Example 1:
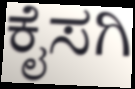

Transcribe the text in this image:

ಕೈಸಗಿ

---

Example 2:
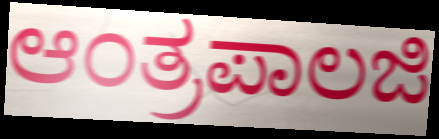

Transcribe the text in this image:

ಆಂತ್ರಪಾಲಜಿ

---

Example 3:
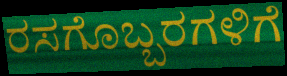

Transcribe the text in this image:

ರಸಗೊಬ್ಬರಗಳಿಗೆ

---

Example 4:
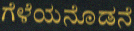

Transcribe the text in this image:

ಗೆಳೆಯನೊಡನೆ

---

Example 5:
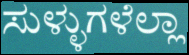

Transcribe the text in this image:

ಸುಳ್ಳುಗಳೆಲ್ಲಾ